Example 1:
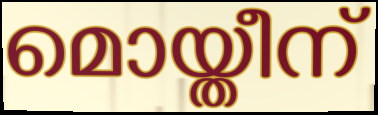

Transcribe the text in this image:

മൊയ്തീന്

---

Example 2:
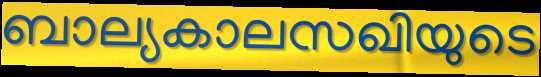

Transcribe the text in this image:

ബാല്യകാലസഖിയുടെ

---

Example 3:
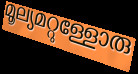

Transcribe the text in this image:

മൂല്യമറ്റുള്ളോരു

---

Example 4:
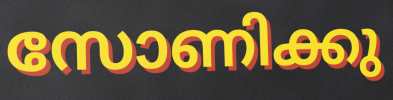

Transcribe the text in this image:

സോണിക്കു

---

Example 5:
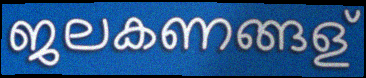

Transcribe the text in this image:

ജലകണങ്ങള്